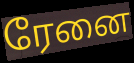
ரேனை